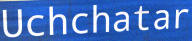
Uchchatar